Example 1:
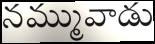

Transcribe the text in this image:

నమ్మువాడు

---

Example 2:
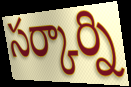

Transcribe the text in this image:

సర్కార్ని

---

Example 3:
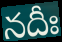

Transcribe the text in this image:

నదీః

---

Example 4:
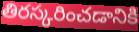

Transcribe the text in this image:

తిరస్కరించడానికి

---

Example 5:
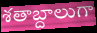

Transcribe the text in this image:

శతాబ్దాలుగా